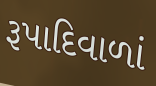
રૂપાદિવાળાં